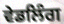
ਵੇਡਲਿੰਗ